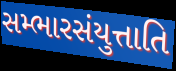
સમ્ભારસંયુત્તાતિ